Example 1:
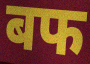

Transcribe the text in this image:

बफ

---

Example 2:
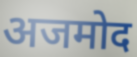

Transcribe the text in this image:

अजमोद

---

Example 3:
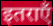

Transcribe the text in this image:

इतराएँ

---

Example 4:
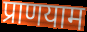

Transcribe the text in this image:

प्राणयाम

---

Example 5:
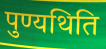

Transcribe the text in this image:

पुण्यथिति